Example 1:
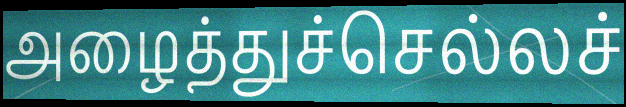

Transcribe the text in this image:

அழைத்துச்செல்லச்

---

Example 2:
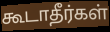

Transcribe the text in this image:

கூடாதீர்கள்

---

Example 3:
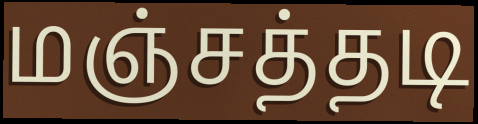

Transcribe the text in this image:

மஞ்சத்தடி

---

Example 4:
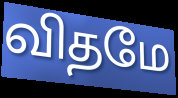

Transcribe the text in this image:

விதமே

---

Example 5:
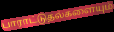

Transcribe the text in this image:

பாராட்டுதல்களையும்